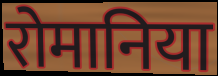
रोमानिया